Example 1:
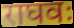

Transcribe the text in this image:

राघवः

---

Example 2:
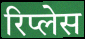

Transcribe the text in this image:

रिप्लेस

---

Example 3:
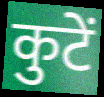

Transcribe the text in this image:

कुटें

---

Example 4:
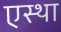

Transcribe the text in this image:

एस्था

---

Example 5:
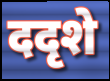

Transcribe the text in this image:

ददृशे